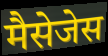
मैसेजेस